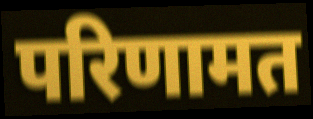
परिणामत